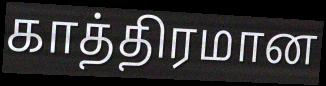
காத்திரமான